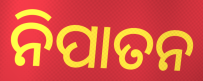
ନିପାତନ